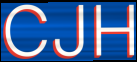
CJH